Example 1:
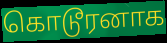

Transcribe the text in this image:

கொடூரனாக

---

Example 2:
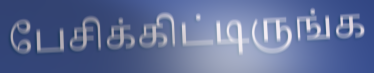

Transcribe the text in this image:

பேசிக்கிட்டிருங்க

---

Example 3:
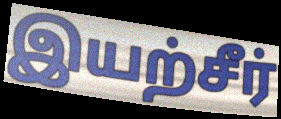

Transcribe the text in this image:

இயற்சீர்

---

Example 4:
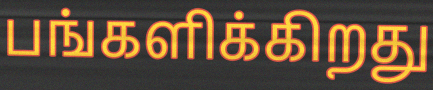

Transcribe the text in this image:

பங்களிக்கிறது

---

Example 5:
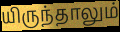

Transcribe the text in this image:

யிருந்தாலும்